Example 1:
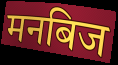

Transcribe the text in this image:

मनबिज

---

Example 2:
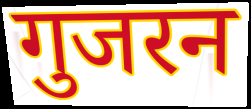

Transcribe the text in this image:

गुजरन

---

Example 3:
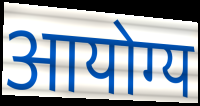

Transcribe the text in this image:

आयोग्य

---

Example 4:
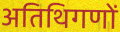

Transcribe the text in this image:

अतिथिगणों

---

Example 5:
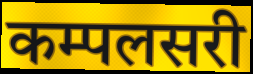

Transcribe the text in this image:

कम्पलसरी